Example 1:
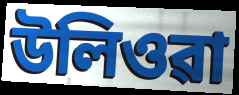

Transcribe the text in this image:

উলিওৱা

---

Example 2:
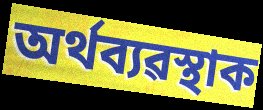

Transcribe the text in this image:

অৰ্থব্যৱস্থাক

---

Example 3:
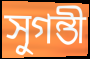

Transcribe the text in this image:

সুগন্তী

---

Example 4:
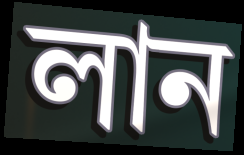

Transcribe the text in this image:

লান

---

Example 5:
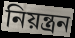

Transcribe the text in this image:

নিয়ন্ত্ৰন